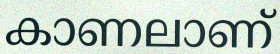
കാണലാണ്